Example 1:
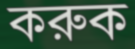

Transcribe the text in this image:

করুক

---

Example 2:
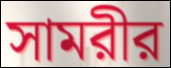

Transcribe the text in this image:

সামরীর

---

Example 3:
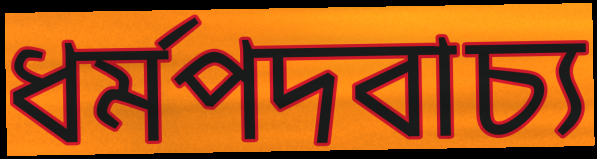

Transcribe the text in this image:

ধর্মপদবাচ্য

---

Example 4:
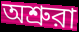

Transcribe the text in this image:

অশ্রুরা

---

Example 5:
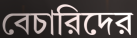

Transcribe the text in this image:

বেচারিদের